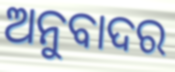
ଅନୁବାଦର